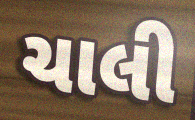
ચાલી